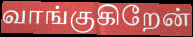
வாங்குகிறேன்